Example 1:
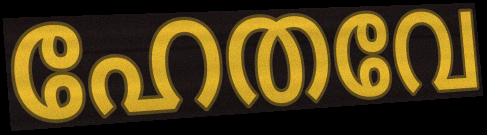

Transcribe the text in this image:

ഹേതവേ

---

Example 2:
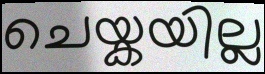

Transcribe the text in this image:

ചെയ്കയില്ല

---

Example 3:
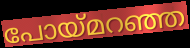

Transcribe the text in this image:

പോയ്മറഞ്ഞ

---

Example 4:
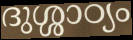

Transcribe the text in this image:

ദുശ്ശാഠ്യം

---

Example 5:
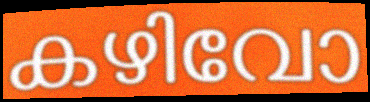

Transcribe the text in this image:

കഴിവോ